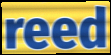
reed